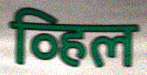
व्हिल